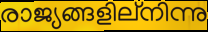
രാജ്യങ്ങളില്നിന്നു